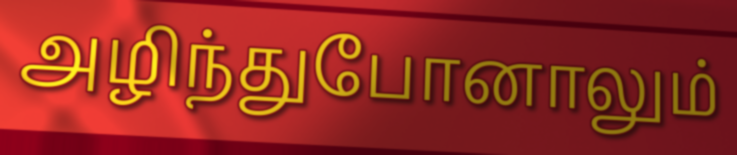
அழிந்துபோனாலும்